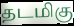
தடமிகு